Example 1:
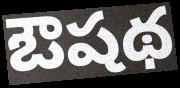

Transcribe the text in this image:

ఔషథ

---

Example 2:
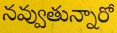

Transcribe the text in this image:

నవ్వుతున్నారో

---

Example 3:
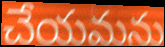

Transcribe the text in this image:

చేయమను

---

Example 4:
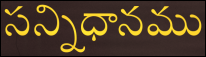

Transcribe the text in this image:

సన్నిధానము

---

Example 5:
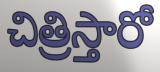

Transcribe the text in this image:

చిత్రిస్తారో